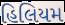
હિલિયમ